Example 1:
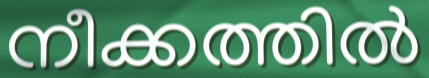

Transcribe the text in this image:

നീക്കത്തിൽ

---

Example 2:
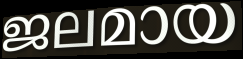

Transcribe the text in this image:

ജലമായ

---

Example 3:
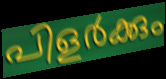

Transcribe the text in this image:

പിളർക്കും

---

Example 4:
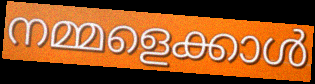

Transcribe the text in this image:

നമ്മളെക്കാൾ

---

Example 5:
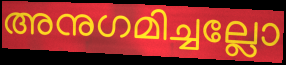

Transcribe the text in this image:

അനുഗമിച്ചല്ലോ